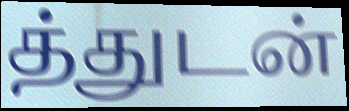
த்துடன்